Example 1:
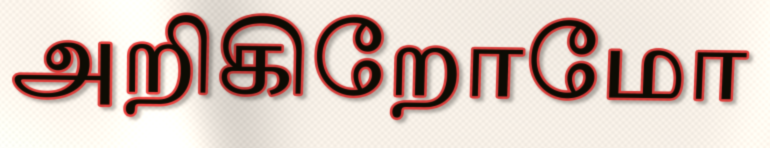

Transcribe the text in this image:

அறிகிறோமோ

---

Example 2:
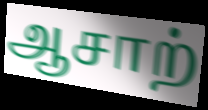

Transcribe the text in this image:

ஆசாற்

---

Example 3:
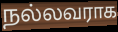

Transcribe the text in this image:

நல்லவராக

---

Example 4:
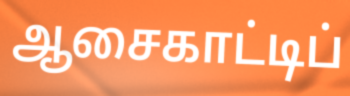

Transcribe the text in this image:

ஆசைகாட்டிப்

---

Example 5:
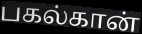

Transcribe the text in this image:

பகல்கான்